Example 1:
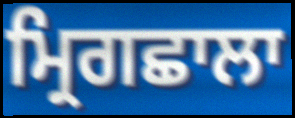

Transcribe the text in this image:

ਮ੍ਰਿਗਛਾਲਾ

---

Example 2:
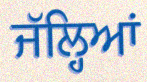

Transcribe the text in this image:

ਜੱਲ੍ਹਿਆਂ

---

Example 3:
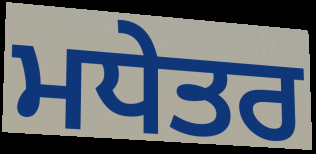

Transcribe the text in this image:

ਮਧੇਤਰ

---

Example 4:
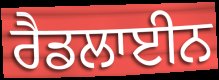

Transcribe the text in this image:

ਰੈਡਲਾਈਨ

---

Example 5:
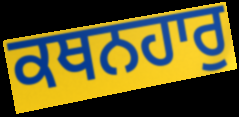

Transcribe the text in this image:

ਕਥਨਹਾਰੁ